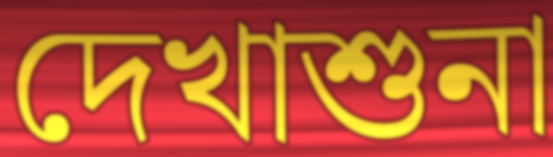
দেখাশুনা